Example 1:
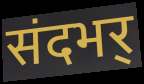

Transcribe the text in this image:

संदभर्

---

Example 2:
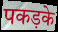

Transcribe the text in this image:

पकड़के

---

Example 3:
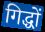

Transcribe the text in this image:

गिद्धों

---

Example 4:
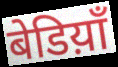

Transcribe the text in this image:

बेडिय़ाँ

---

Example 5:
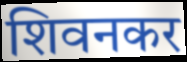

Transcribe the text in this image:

शिवनकर